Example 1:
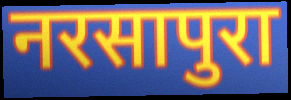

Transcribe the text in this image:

नरसापुरा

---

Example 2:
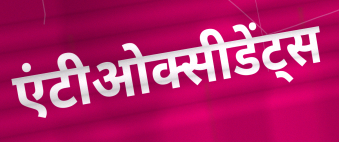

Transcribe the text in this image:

एंटीओक्सीडेंट्स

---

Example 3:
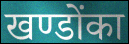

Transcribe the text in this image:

खण्डोंका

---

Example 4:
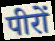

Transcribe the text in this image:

पीरों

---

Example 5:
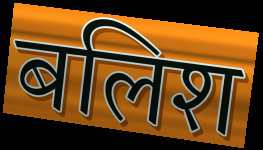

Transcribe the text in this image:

बलिश